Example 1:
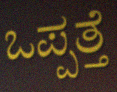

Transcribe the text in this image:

ಒಪ್ಪತ್ತೆ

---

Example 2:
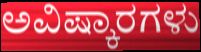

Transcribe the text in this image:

ಅವಿಷ್ಕಾರಗಳು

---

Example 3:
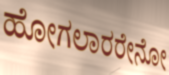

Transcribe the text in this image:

ಹೋಗಲಾರರೇನೋ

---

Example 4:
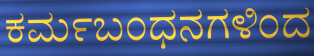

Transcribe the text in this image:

ಕರ್ಮಬಂಧನಗಳಿಂದ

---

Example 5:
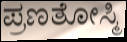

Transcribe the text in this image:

ಪ್ರಣತೋಸ್ಮಿ